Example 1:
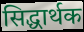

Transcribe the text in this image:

सिद्धार्थक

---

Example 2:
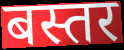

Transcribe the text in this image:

बस्तर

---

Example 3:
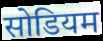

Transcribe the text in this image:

सोडियम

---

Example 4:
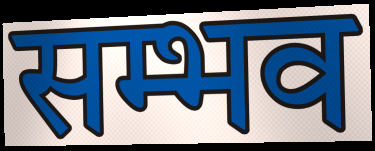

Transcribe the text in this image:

सम्भव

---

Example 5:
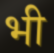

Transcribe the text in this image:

भी